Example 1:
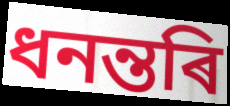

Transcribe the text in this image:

ধনন্তৰি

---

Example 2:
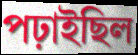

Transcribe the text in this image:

পঢ়াইছিল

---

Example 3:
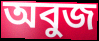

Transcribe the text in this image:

অবুজ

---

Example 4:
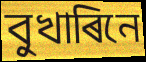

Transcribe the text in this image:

বুখাৰিনে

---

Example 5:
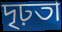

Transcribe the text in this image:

দৃঢ়তা